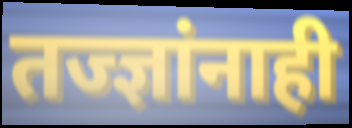
तज्ज्ञांनाही